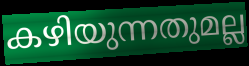
കഴിയുന്നതുമല്ല